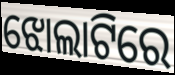
ଝୋଲାଟିରେ